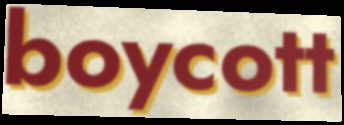
boycott